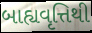
બાહ્યવૃત્તિથી